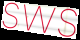
sws